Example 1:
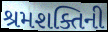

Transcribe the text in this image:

શ્રમશક્તિની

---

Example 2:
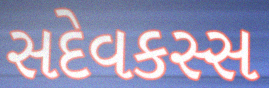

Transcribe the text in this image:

સદેવકસ્સ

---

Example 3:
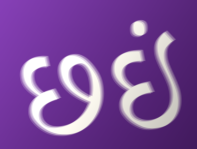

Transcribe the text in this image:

છઇં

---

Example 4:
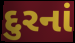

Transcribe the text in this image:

દુરનાં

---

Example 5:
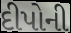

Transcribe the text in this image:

દીપોની